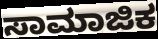
ಸಾಮಾಜಿಕ